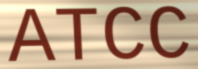
ATCC